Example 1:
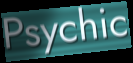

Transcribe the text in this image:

Psychic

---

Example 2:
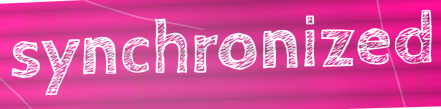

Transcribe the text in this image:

synchronized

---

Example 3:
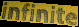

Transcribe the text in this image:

infinite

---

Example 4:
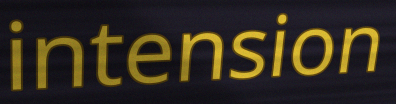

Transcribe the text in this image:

intension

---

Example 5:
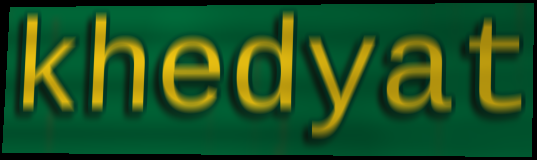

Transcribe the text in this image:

khedyat